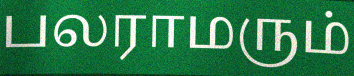
பலராமரும்